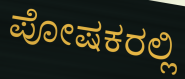
ಪೋಷಕರಲ್ಲಿ